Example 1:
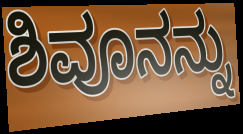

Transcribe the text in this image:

ಶಿವೂನನ್ನು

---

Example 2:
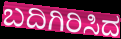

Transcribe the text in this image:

ಬದಿಗಿರಿಸಿದ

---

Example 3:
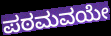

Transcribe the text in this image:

ಪಠಮವಯೇ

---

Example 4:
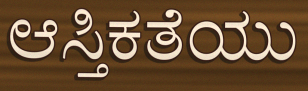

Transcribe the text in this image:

ಆಸ್ತಿಕತೆಯು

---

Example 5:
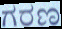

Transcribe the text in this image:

ಗರಣ